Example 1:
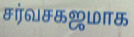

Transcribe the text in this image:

சர்வசகஜமாக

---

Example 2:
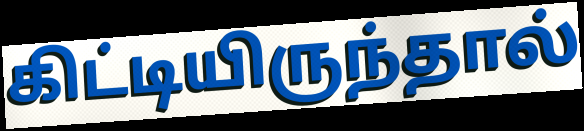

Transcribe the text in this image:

கிட்டியிருந்தால்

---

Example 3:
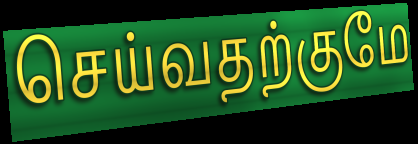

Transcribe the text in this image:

செய்வதற்குமே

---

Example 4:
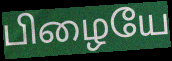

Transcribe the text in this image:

பிழையே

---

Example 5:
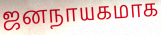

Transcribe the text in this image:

ஜனநாயகமாக